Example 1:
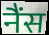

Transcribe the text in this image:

नैंस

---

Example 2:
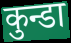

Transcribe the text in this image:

कुन्डा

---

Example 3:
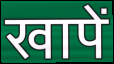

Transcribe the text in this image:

खापें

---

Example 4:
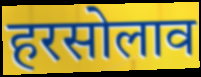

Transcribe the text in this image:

हरसोलाव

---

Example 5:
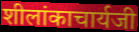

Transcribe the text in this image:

शीलांकाचार्यजी